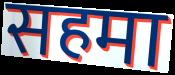
सहमा